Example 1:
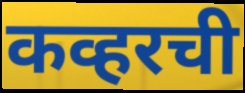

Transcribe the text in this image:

कव्हरची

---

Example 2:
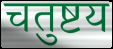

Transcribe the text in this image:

चतुष्टय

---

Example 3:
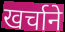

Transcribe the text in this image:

खर्चाने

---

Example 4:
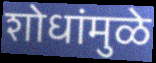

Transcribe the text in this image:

शोधांमुळे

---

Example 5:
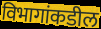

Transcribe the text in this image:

विभागांकडील